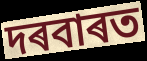
দৰবাৰত